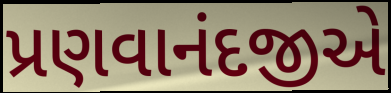
પ્રણવાનંદજીએ